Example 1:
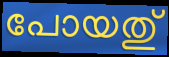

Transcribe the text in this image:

പോയതു്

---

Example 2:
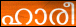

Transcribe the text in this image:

ഹാരീ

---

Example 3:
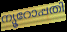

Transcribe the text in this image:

ന്യൂറോപ്പതി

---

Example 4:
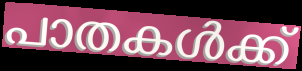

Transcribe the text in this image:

പാതകൾക്ക്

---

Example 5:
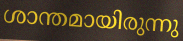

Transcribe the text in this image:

ശാന്തമായിരുന്നു